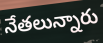
నేతలున్నారు